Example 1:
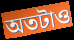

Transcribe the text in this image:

অতটাও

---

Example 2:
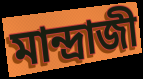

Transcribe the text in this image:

মান্দ্রাজী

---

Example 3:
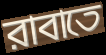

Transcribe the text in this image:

রাবাতে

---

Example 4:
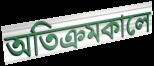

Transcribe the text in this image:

অতিক্রমকালে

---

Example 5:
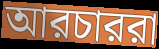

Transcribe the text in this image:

আরচাররা